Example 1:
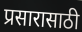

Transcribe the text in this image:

प्रसारासाठी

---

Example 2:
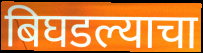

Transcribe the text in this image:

बिघडल्याचा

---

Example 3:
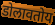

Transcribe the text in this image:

डोलावतोय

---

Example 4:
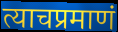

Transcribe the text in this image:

त्याचप्रमाणं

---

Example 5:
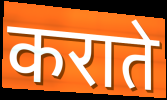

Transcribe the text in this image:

कराते